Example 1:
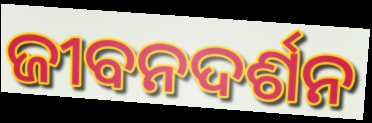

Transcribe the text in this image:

ଜୀବନଦର୍ଶନ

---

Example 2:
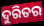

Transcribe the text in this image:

ଦୁରିତର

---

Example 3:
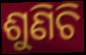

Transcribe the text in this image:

ଶୁଣିଚି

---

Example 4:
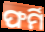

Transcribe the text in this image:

ଫର୍ମି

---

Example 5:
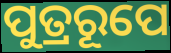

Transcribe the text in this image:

ପୁତ୍ରରୂପେ